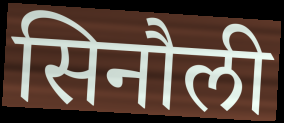
सिनौली